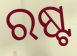
ରଷ୍ଟ